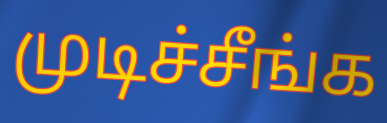
முடிச்சீங்க